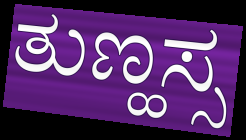
ತುಣ್ಹಸ್ಸ